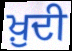
ਖ਼ੁਦੀ